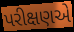
પરીક્ષણએ